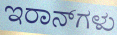
ಇರಾನ್‌ಗಳು